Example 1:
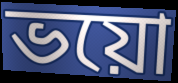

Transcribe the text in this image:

ভয়ো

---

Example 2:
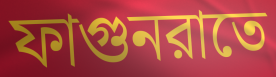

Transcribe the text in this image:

ফাগুনরাতে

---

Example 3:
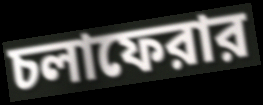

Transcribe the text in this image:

চলাফেরার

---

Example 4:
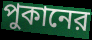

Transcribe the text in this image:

পুকানের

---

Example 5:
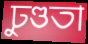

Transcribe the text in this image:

ঢুণ্ডতা